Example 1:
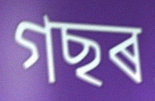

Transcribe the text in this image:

গছৰ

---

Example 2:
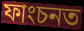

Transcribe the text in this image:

ফাংচনত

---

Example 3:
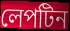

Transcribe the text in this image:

লেপটিন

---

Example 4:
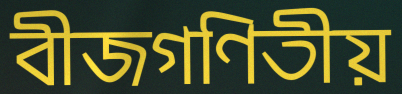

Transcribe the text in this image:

বীজগণিতীয়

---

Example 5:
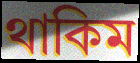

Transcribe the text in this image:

থাকিম